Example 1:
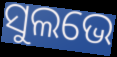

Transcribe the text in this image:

ସୁଲଭେ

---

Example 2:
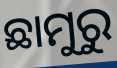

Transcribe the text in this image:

ଛାମୁରୁ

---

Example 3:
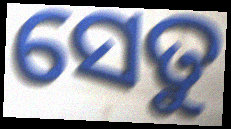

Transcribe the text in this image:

ସେତୁ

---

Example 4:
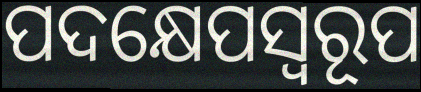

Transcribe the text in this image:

ପଦକ୍ଷେପସ୍ୱରୂପ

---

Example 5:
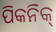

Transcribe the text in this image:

ପିକନିକ୍